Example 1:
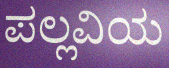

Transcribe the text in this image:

ಪಲ್ಲವಿಯ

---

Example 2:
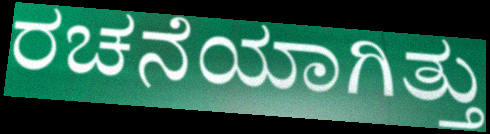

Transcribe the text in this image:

ರಚನೆಯಾಗಿತ್ತು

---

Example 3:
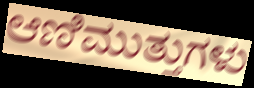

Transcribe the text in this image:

ಆಣಿಮುತ್ತುಗಳು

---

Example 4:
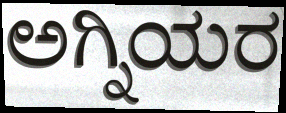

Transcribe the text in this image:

ಅಗ್ನಿಯರ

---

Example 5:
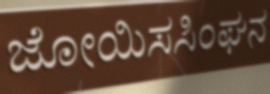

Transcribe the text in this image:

ಜೋಯಿಸಸಿಂಘನ